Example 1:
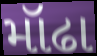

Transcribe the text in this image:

મૉઢા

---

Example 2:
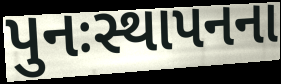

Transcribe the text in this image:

પુનઃસ્થાપનના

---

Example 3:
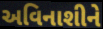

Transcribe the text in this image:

અવિનાશીને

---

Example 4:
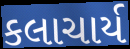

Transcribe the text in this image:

કલાચાર્ય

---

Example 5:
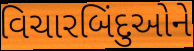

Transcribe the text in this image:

વિચારબિંદુઓને